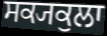
ਸਕ੍ਯਕੁਲਾ